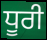
ਧੂਰੀ